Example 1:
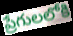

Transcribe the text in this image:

ప్రేగులలోకి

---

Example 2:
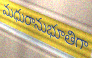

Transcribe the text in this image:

మధురానుభూతిగా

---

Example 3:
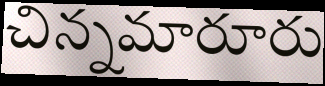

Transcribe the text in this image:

చిన్నమారూరు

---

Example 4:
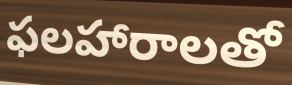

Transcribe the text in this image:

ఫలహారాలతో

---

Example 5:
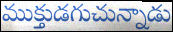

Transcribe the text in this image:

ముక్తుడగుచున్నాడు